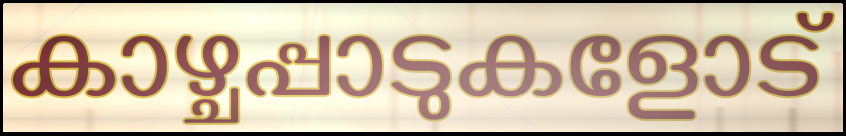
കാഴ്ചപ്പാടുകളോട്